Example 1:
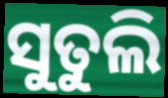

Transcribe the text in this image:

ସୁତୁଲି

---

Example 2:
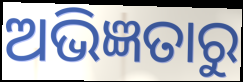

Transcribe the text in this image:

ଅଭିଜ୍ଞତାରୁ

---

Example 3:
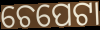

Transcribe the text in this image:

ଚେପେଟା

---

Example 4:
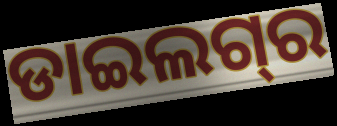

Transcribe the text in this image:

ଡାଇଲଗ୍‌ର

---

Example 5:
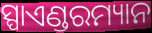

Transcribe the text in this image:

ସ୍ପାଏଣ୍ଡରମ୍ୟାନ